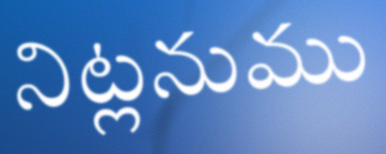
నిట్లనుము